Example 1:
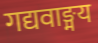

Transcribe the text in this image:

गद्यवाङ्मय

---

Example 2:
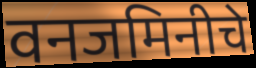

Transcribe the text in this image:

वनजमिनीचे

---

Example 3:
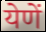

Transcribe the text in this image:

येणें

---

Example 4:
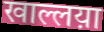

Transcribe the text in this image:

खाल्लय़ा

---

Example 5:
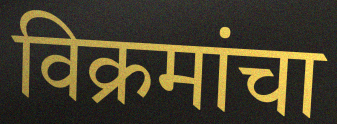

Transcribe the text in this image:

विक्रमांचा